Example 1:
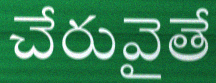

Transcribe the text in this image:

చేరువైతే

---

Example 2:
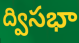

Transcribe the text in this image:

ద్విసభా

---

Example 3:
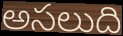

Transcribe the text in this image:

అసలుది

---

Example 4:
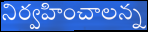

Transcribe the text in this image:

నిర్వహించాలన్న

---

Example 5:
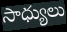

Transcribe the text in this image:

సాధ్యులు